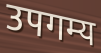
उपगम्य